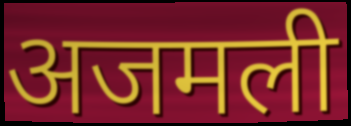
अजमली